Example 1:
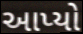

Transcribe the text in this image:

આપ્યો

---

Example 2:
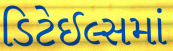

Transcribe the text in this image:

ડિટેઈલ્સમાં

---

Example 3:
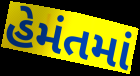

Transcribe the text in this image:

હેમંતમાં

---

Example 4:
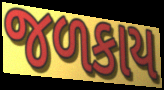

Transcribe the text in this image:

જળકાય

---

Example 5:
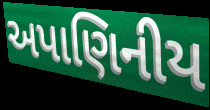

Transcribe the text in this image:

અપાણિનીય